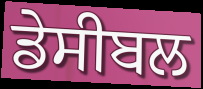
ਡੇਸੀਬਲ